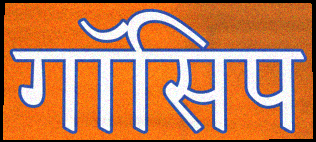
गॉसिप